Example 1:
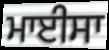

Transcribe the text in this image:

ਮਾਈਸਾ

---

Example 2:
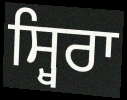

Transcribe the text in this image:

ਸ੍ਥਿਰਾ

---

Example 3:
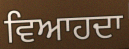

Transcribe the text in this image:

ਵਿਆਹਦਾ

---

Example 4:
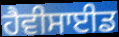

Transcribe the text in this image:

ਹੈਵੀਸਾਈਡ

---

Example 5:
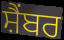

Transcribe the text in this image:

ਸ਼ੈਂਬਰ